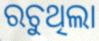
ରଚୁଥିଲା